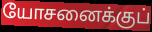
யோசனைக்குப்